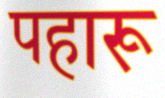
पहारू